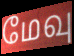
மேவு